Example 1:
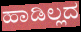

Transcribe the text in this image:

ಹಾಡಿಲ್ಲದ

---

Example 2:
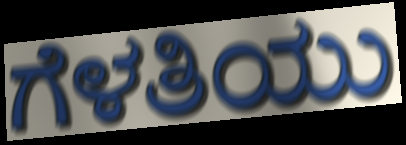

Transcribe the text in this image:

ಗೆಳತಿಯು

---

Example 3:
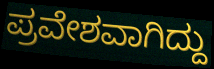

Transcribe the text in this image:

ಪ್ರವೇಶವಾಗಿದ್ದು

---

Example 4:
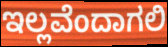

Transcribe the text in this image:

ಇಲ್ಲವೆಂದಾಗಲಿ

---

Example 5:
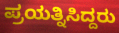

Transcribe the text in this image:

ಪ್ರಯತ್ನಿಸಿದ್ದರು